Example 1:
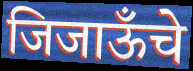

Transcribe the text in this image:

जिजाऊँचे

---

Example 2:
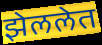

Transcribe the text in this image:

झेललेत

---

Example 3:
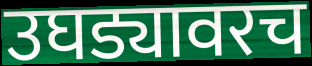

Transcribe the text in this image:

उघड्यावरच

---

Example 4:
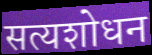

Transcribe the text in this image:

सत्यशोधन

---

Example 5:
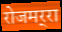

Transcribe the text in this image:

रोजमर्रा